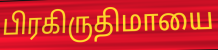
பிரகிருதிமாயை